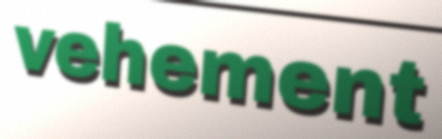
vehement